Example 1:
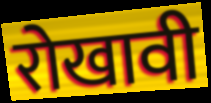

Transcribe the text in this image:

रोखावी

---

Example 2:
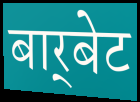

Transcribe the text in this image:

बार्बेट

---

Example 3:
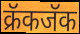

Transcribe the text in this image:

क्रॅकजॅक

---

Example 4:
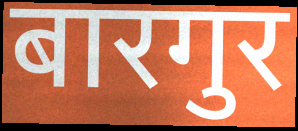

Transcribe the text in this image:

बारगुर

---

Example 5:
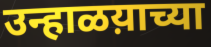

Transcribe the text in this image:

उन्हाळय़ाच्या